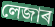
লেজাৰ